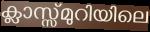
ക്ലാസ്സ്മുറിയിലെ